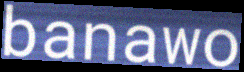
banawo